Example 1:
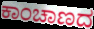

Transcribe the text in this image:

ಕಾಂಚಾಣದ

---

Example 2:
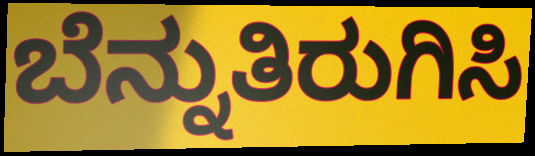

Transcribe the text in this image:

ಬೆನ್ನುತಿರುಗಿಸಿ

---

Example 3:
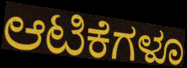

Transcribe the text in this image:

ಆಟಿಕೆಗಳೂ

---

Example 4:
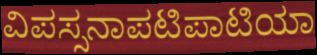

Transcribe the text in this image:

ವಿಪಸ್ಸನಾಪಟಿಪಾಟಿಯಾ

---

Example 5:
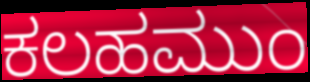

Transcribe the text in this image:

ಕಲಹಮುಂ